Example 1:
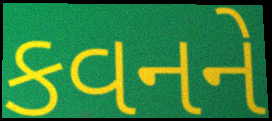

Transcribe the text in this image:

કવનને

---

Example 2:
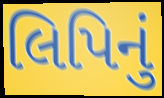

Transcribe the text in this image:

લિપિનું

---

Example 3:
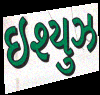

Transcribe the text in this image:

ઇશ્યુઝ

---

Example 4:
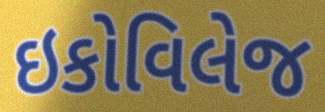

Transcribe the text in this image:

ઇકોવિલેજ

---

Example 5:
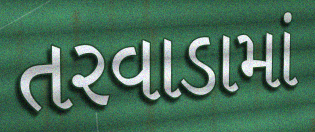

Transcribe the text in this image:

તરવાડામાં